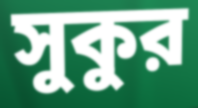
সুকুর